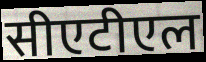
सीएटीएल